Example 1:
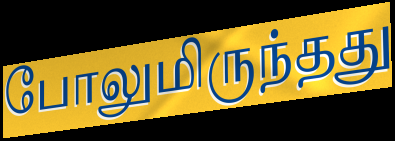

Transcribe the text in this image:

போலுமிருந்தது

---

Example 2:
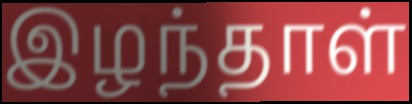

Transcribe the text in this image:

இழந்தாள்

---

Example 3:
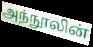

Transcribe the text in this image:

அந்நூலின்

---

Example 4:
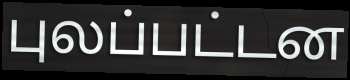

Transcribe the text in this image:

புலப்பட்டன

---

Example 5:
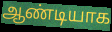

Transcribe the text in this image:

ஆண்டியாக